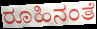
ರೂಹಿನಂತೆ